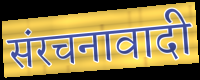
संरचनावादी